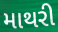
માથરી